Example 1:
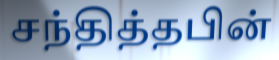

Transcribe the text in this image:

சந்தித்தபின்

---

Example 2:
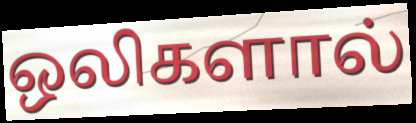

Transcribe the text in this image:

ஒலிகளால்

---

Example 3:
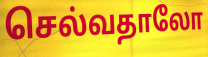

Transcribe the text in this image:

செல்வதாலோ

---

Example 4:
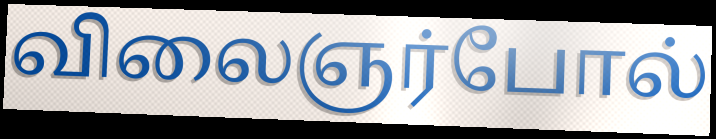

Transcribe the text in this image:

விலைஞர்போல்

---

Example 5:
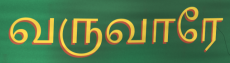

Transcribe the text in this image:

வருவாரே